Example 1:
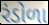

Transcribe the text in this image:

રંડોળા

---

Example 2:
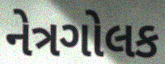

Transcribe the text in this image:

નેત્રગોલક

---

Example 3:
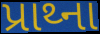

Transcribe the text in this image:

પ્રાથ્ના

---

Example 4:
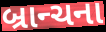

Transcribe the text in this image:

બ્રાન્ચના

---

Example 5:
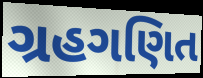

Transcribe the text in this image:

ગ્રહગણિત